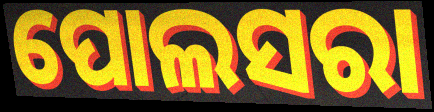
ପୋଲସରା